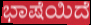
ಭಾಷೆಯಿದೆ